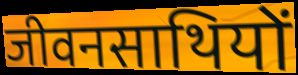
जीवनसाथियों